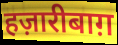
हज़ारीबाग़